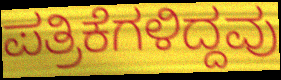
ಪತ್ರಿಕೆಗಳಿದ್ದವು